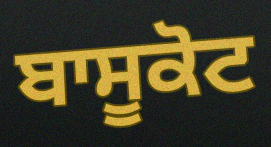
ਬਾਸੂਕੋਟ